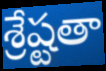
శ్రేష్టతా